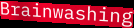
Brainwashing